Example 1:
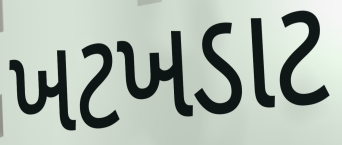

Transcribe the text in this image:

ખટખડાટ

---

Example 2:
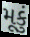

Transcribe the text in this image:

મૂકું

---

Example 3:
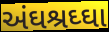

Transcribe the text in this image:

અંઘશ્રઘ્ઘા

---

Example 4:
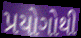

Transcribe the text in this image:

પ્રયોગોથી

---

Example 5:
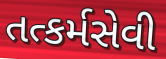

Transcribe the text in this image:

તત્કર્મસેવી